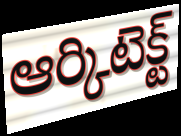
ఆర్కిటెక్ట్